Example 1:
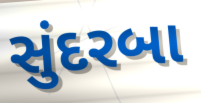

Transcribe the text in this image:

સુંદરબા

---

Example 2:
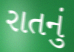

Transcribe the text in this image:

રાતનું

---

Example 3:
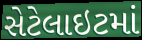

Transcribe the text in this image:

સેટેલાઇટમાં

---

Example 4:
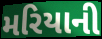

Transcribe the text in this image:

મરિયાની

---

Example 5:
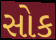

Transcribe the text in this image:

સોક